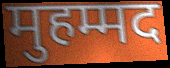
मुहम्मद